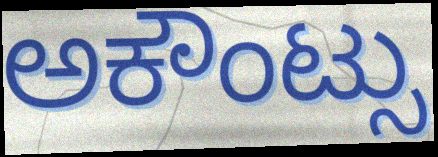
ಅಕೌಂಟ್ಸು